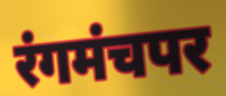
रंगमंचपर